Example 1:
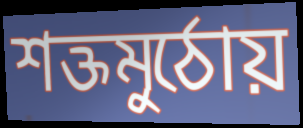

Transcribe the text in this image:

শক্তমুঠোয়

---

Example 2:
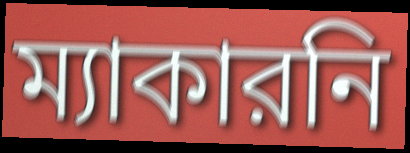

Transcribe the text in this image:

ম্যাকারনি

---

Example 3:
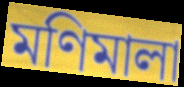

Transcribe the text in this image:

মণিমালা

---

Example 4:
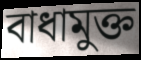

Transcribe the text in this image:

বাধামুক্ত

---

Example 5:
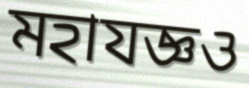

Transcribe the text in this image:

মহাযজ্ঞও